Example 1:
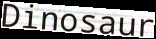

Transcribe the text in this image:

Dinosaur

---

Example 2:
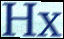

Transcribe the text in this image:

Hx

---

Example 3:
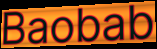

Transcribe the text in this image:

Baobab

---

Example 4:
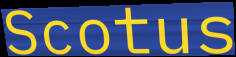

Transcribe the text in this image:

Scotus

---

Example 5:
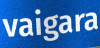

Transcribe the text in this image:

vaigara